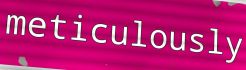
meticulously